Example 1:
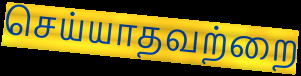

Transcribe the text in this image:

செய்யாதவற்றை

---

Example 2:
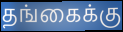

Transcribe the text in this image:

தங்கைக்கு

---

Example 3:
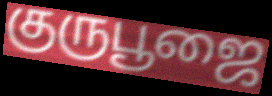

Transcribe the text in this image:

குருபூஜை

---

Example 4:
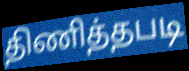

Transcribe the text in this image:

திணித்தபடி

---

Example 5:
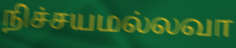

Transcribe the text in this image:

நிச்சயமல்லவா